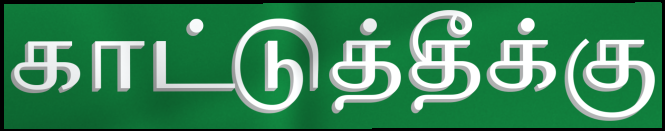
காட்டுத்தீக்கு